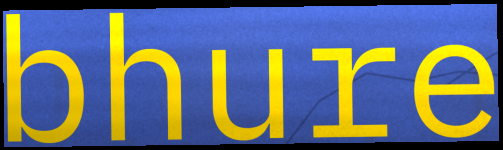
bhure